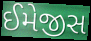
ઈમેજીસ